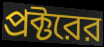
প্রক্টরের